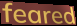
feared